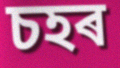
চহৰ